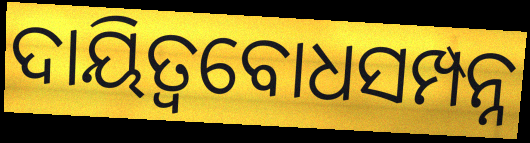
ଦାୟିତ୍ୱବୋଧସମ୍ପନ୍ନ